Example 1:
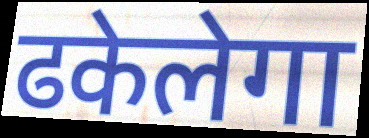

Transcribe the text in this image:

ढकेलेगा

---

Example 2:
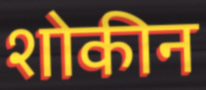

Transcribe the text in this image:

शोकीन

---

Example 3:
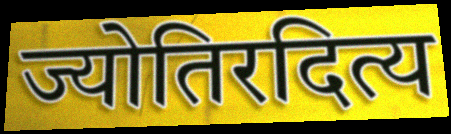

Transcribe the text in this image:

ज्योतिरदित्य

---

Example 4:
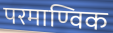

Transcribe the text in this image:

परमाण्विक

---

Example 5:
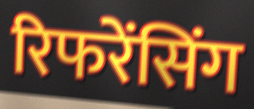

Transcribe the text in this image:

रिफरेंसिंग